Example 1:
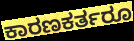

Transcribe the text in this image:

ಕಾರಣಕರ್ತರೂ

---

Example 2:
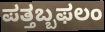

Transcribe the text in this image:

ಪತ್ತಬ್ಬಫಲಂ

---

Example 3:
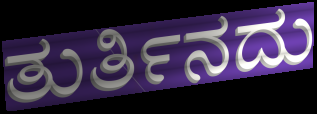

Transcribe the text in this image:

ತುರ್ತಿನದು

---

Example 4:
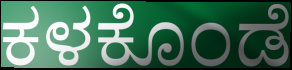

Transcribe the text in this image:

ಕಳಕೊಂಡೆ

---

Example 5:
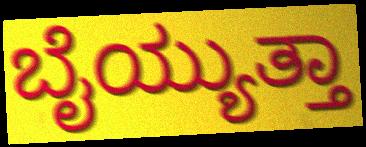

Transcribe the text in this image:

ಬೈಯ್ಯುತ್ತಾ